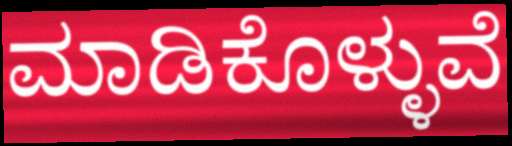
ಮಾಡಿಕೊಳ್ಳುವೆ